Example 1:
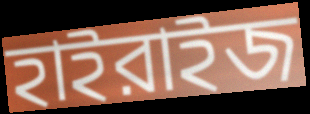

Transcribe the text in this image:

হাইরাইজ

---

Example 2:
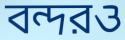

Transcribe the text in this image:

বন্দরও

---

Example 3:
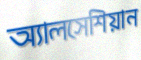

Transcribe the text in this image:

অ্যালসেশিয়ান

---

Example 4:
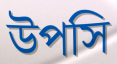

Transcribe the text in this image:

উপসি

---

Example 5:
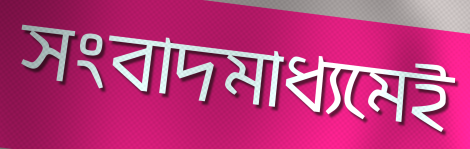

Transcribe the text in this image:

সংবাদমাধ্যমেই